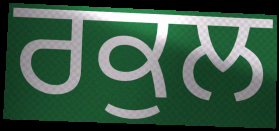
ਰਕੁਲ